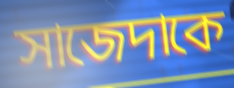
সাজেদাকে